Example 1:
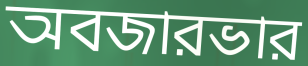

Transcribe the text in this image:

অবজারভার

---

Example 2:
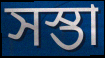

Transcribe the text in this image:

সস্তা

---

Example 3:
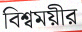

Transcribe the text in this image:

বিশ্বময়ীর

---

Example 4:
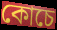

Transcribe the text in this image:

কোচে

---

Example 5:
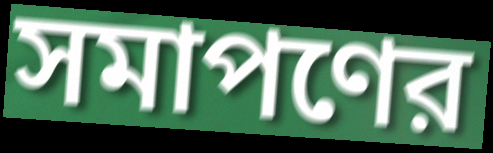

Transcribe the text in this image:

সমাপণের